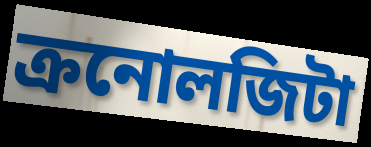
ক্রনোলজিটা